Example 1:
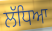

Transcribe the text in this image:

ਲੱਧਿਆ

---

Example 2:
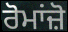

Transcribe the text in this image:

ਰੋਮਾਂਜ਼ੋ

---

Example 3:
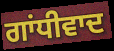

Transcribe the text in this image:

ਗਾਂਧੀਵਾਦ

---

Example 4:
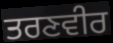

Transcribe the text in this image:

ਤਰਣਵੀਰ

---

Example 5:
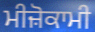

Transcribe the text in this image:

ਮੀਜ਼ੋਕਾਮੀ